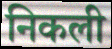
निकली